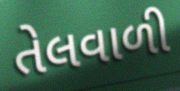
તેલવાળી